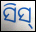
ସିସ୍